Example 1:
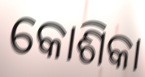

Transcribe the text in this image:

କୋଶିକା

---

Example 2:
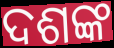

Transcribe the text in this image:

ଦଶଙ୍କ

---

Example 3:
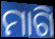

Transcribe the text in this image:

ମାଗି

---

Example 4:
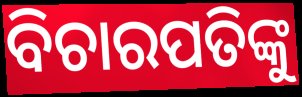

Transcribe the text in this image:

ବିଚାରପତିଙ୍କୁ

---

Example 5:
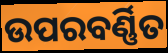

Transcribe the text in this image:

ଉପରବର୍ଣ୍ଣିତ